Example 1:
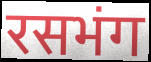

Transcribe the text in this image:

रसभंग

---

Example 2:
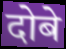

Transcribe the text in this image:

दोबे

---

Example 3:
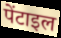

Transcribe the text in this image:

पेंटाइल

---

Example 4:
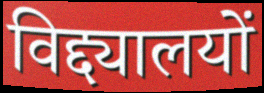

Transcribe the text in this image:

विद्द्यालयों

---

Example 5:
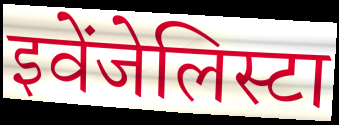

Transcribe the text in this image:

इवेंजेलिस्टा